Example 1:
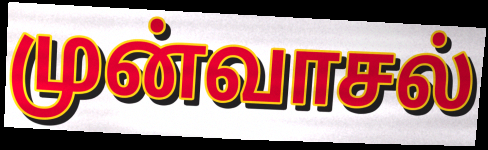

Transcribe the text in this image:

முன்வாசல்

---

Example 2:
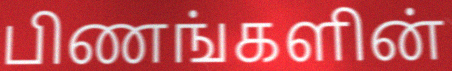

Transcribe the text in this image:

பிணங்களின்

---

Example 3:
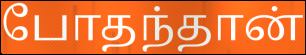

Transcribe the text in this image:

போதந்தான்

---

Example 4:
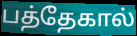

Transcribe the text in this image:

பத்தேகால்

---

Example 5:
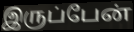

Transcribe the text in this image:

இருப்பேன்